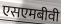
एसएमबीवी